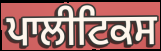
ਪਾਲੀਟਿਕਸ